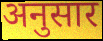
अनुसार